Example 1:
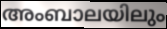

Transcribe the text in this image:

അംബാലയിലും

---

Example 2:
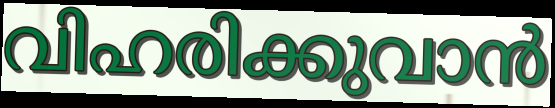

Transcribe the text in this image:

വിഹരിക്കുവാൻ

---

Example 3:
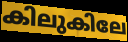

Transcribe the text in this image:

കിലുകിലേ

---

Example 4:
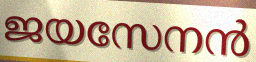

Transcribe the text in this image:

ജയസേനൻ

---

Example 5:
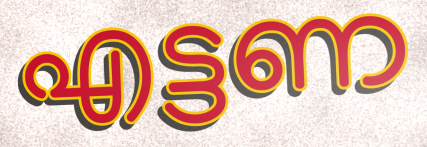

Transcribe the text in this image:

എട്ടണ